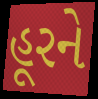
હૂરને